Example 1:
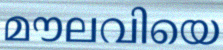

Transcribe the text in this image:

മൗലവിയെ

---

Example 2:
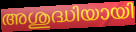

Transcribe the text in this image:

അശുദ്ധിയായി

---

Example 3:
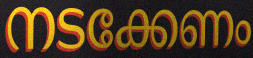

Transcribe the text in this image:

നടക്കേണം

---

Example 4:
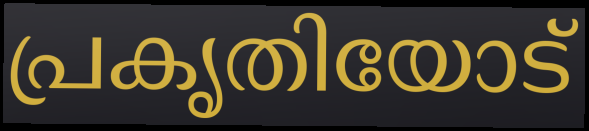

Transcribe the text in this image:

പ്രകൃതിയോട്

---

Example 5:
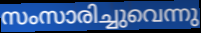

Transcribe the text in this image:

സംസാരിച്ചുവെന്നു